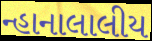
ન્હાનાલાલીય